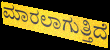
ಮಾರಲಾಗುತ್ತಿದೆ